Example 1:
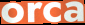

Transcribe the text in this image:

orca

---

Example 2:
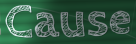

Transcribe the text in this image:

Cause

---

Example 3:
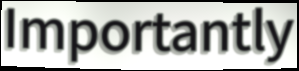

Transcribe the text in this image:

Importantly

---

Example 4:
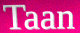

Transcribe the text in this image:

Taan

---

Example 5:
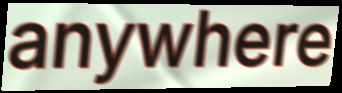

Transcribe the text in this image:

anywhere